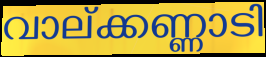
വാല്ക്കണ്ണാടി